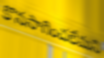
కొనసాగించలేమని